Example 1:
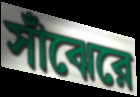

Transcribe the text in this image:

সাঁঝেরে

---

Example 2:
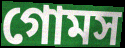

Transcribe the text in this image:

গোমস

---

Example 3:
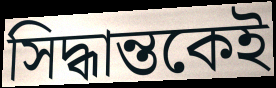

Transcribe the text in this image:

সিদ্ধান্তকেই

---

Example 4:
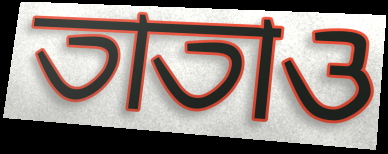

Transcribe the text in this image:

তাতাও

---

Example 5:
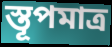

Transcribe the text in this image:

স্তূপমাত্র